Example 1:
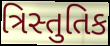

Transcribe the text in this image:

ત્રિસ્તુતિક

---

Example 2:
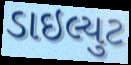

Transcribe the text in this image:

ડાઇલ્યુટ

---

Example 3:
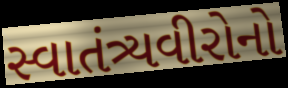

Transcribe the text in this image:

સ્વાતંત્ર્યવીરોનો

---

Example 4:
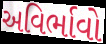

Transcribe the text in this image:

અવિર્ભાવો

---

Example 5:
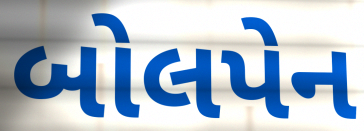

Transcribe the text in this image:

બોલપેન